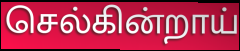
செல்கின்றாய்